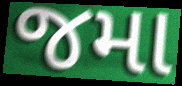
જમા